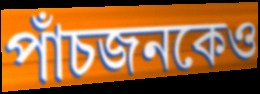
পাঁচজনকেও